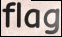
flag